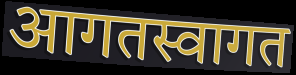
आगतस्वागत